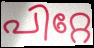
പിറ്റേ